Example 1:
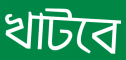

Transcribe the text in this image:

খাটবে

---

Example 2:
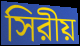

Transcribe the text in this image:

সিরীয়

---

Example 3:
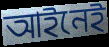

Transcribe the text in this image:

আইনেই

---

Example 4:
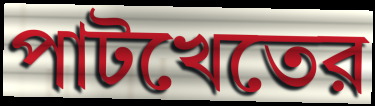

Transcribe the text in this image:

পাটখেতের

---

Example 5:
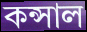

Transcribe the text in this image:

কন্সাল